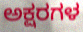
ಅಕ್ಷರಗಳ